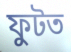
ফুটত